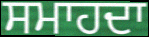
ਸਮਾਹਦਾ